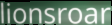
lionsroar